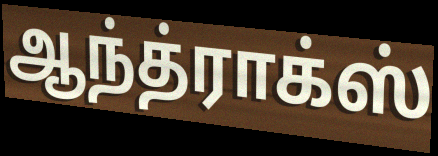
ஆந்த்ராக்ஸ்